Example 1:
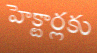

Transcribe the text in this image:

హెక్టార్లకు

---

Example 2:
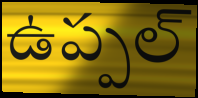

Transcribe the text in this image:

ఉప్పల్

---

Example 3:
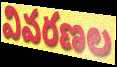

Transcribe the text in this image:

వివరణల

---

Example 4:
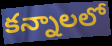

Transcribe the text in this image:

కన్నాలలో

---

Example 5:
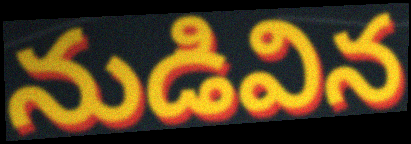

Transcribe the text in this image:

నుడివిన